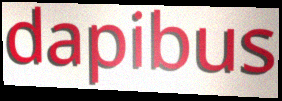
dapibus